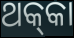
ଥକ୍‌କା